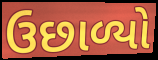
ઉછાળ્યો